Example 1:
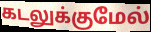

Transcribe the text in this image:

கடலுக்குமேல்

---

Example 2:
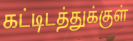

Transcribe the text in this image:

கட்டிடத்துக்குள்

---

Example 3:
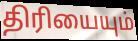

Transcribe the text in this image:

திரியையும்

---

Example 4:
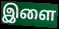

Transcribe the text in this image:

இளை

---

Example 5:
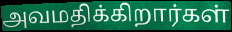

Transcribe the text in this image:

அவமதிக்கிறார்கள்